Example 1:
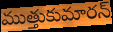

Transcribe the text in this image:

ముత్తుకుమారన్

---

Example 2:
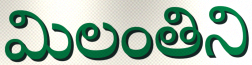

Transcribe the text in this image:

మిలంతిని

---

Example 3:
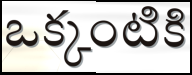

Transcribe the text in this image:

ఒక్కంటికి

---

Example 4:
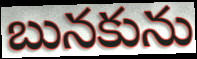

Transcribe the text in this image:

బునకును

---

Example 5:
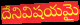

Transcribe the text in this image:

దేనివిషయమై